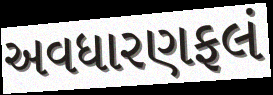
અવધારણફલં